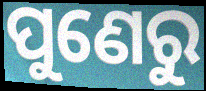
ପୁଣେରୁ